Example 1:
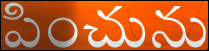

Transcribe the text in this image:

పించును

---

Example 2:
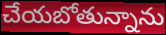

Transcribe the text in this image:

చేయబోతున్నాను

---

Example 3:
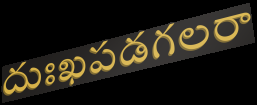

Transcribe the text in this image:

దుఃఖపడగలరా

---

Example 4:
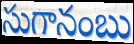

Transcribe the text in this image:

సుగానంబు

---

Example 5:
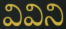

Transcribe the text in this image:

వివిని